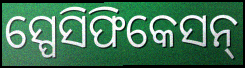
ସ୍ପେସିଫିକେସନ୍